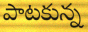
పాటకున్న